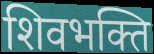
शिवभक्ति